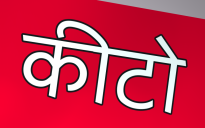
कीटो